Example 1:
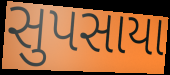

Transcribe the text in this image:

સુપસાયા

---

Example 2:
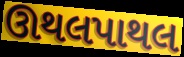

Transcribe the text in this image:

ઊથલપાથલ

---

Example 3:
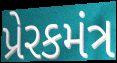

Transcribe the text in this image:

પ્રેરકમંત્ર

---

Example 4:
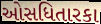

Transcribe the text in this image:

ઓસધિતારકા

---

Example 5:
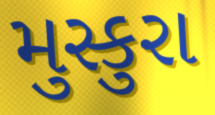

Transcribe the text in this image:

મુસ્કુરા